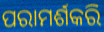
ପରାମର୍ଶକରି